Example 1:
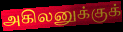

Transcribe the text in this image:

அகிலனுக்குக்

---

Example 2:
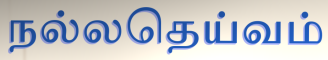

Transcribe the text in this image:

நல்லதெய்வம்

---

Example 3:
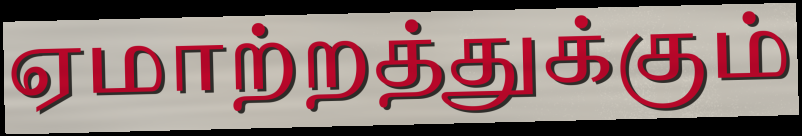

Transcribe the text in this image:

ஏமாற்றத்துக்கும்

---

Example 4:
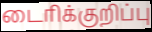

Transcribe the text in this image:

டைரிக்குறிப்பு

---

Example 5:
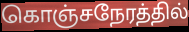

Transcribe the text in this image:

கொஞ்சநேரத்தில்